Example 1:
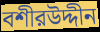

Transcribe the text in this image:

বশীরউদ্দীন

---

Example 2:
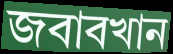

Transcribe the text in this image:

জবাবখান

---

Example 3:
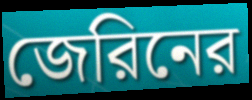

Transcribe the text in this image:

জেরিনের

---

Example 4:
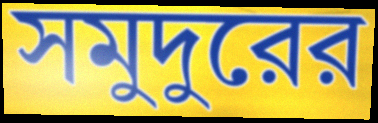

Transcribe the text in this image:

সমুদুরের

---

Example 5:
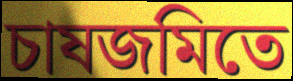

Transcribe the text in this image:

চাষজমিতে